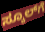
ಸ್ಕೂಲ್‌ಗೆ